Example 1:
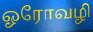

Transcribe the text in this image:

ஓரோவழி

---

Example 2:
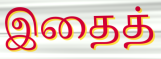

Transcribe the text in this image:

இதைத்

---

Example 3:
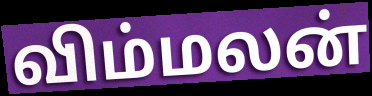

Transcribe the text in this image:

விம்மலன்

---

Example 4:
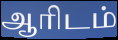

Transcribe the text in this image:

ஆரிடம்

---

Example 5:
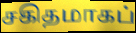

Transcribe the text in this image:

சகிதமாகப்